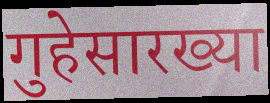
गुहेसारख्या